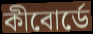
কীবোর্ডে